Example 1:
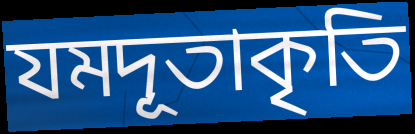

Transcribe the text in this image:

যমদূতাকৃতি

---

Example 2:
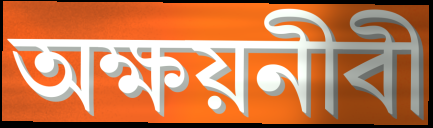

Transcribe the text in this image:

অক্ষয়নীবী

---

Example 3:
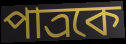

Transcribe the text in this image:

পাত্রকে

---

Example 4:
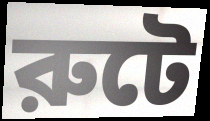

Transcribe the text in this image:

রুটে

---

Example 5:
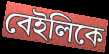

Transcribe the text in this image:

বেইলিকে